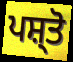
ਪਸ਼੍ਤੋ